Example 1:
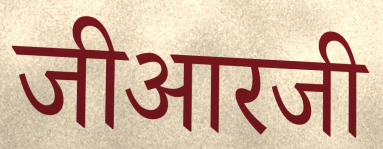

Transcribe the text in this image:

जीआरजी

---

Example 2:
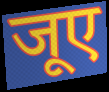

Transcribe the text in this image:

जूए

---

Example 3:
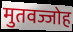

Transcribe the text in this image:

मुतवज्जोह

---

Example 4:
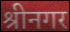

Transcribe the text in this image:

श्रीनगर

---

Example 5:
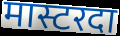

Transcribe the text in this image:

मास्टरदा